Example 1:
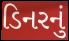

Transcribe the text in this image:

ડિનરનું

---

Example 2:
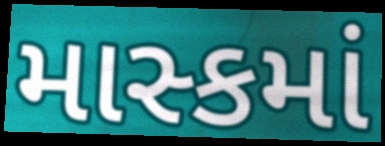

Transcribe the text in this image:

માસ્કમાં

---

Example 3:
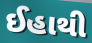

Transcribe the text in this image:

ઈહાથી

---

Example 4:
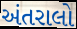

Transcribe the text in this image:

અંતરાલો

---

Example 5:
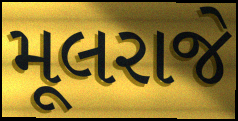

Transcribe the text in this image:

મૂલરાજે